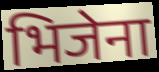
भिजेना